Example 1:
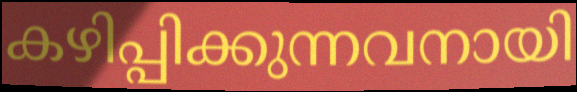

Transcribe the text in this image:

കഴിപ്പിക്കുന്നവനായി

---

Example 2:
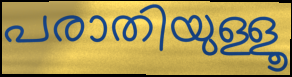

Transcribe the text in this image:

പരാതിയുള്ളൂ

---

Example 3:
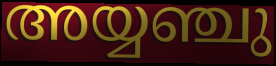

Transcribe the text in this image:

അയ്യഞ്ചു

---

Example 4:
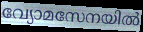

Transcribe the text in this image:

വ്യോമസേനയിൽ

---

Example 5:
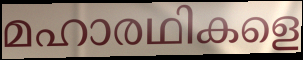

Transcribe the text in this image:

മഹാരഥികളെ